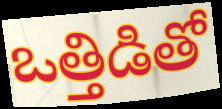
ఒత్తిడితో